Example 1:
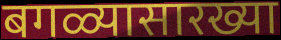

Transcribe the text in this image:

बगळ्यासारख्या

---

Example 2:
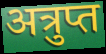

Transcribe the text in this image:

अत्रुप्त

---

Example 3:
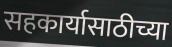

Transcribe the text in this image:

सहकार्यासाठीच्या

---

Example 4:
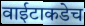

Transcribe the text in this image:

वाईटाकडेच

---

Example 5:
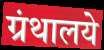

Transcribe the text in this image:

ग्रंथालये